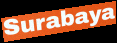
Surabaya